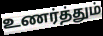
உணர்த்தும்